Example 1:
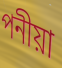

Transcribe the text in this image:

পনীয়া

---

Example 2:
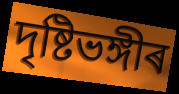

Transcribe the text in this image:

দৃষ্টিভঙ্গীৰ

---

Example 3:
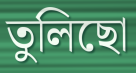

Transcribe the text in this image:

তুলিছো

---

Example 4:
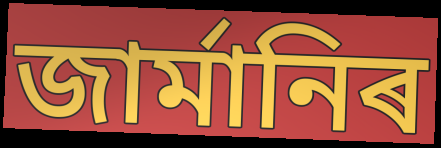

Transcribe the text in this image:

জাৰ্মানিৰ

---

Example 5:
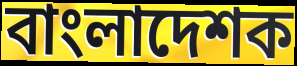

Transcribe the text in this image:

বাংলাদেশক